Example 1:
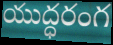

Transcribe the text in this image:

యుద్ధరంగ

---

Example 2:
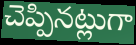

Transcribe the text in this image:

చెప్పినట్లుగా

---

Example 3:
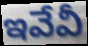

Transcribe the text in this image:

ఇవేవీ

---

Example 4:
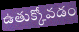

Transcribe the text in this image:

ఉతుక్కోవడం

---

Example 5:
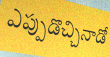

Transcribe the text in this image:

ఎప్పుడొచ్చినాడో